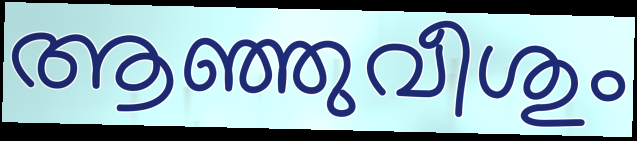
ആഞ്ഞുവീശും